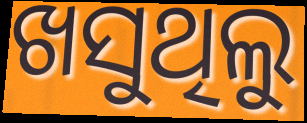
ଖସୁଥିଲୁ